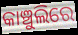
କାଞ୍ଚୁଲିରେ